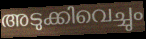
അടുക്കിവെച്ചും